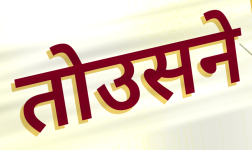
तोउसने